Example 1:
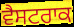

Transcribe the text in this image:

ਵੈਸਟਰਾਕ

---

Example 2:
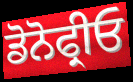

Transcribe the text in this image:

ਡੋਨੋਫ੍ਰੀਓ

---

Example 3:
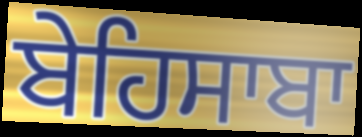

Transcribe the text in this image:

ਬੇਹਿਸਾਬਾ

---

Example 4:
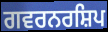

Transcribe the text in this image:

ਗਵਰਨਰਸ਼ਿਪ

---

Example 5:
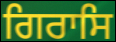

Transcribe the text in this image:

ਗਿਰਾਸਿ